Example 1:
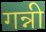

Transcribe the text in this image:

गन्नी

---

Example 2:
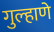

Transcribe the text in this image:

गुल्हाणे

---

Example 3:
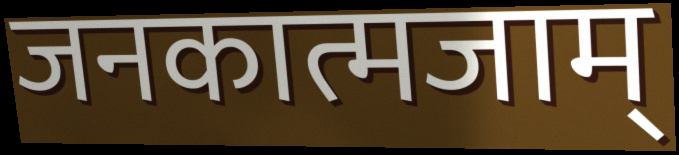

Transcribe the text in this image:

जनकात्मजाम्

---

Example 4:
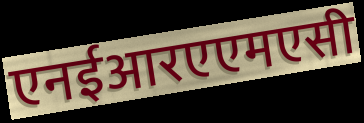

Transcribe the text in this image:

एनईआरएएमएसी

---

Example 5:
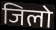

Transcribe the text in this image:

जिलो